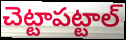
చెట్టాపట్టాల్